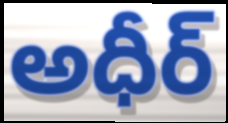
అధీర్